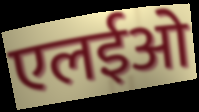
एलईओ